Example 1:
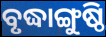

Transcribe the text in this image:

ବୃଦ୍ଧାଙ୍ଗୁଷ୍ଠି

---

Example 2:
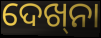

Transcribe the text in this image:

ଦେଖ୍‌ନା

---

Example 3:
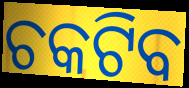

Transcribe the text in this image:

ଚକଟିବ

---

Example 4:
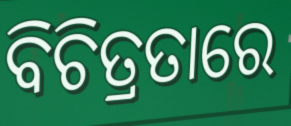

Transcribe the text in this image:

ବିଚିତ୍ରତାରେ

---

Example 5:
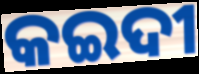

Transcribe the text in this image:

କଇଦୀ